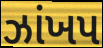
ઝાંખપ